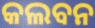
କଲବନ